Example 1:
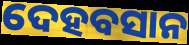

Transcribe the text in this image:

ଦେହବସାନ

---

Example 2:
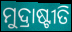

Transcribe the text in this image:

ମୁଦ୍ରାଷ୍ଟୀତି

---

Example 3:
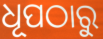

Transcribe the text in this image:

ଧୂପଠାରୁ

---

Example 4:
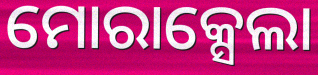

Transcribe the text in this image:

ମୋରାକ୍ସେଲା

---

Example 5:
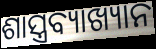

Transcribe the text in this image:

ଶାସ୍ତ୍ରବ୍ୟାଖ୍ୟାନ